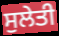
ਸੁਲੇਤੀ